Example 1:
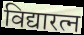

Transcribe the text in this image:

विद्यारत्न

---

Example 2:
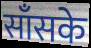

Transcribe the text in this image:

साँसके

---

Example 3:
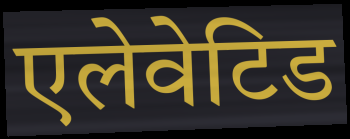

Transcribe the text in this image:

एलेवेटिड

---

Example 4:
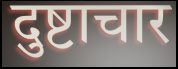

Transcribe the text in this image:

दुष्टाचार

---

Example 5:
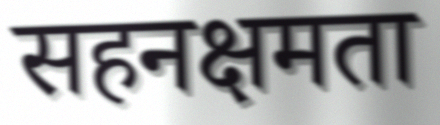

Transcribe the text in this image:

सहनक्षमता